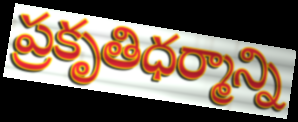
ప్రకృతిధర్మాన్ని